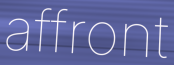
affront